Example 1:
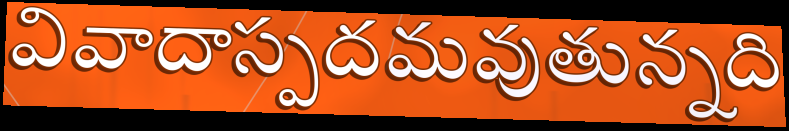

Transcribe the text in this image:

వివాదాస్పదమవుతున్నది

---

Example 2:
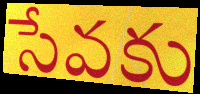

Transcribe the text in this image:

సేవకు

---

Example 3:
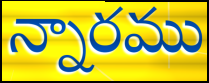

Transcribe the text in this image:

న్నారము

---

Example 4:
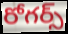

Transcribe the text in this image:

రోగర్స్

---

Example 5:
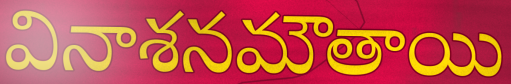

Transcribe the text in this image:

వినాశనమౌతాయి